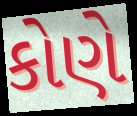
કોણે